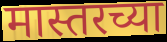
मास्तरच्या